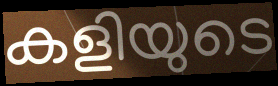
കളിയുടെ